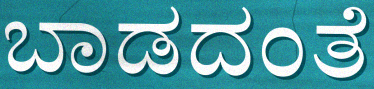
ಬಾಡದಂತೆ